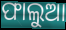
ଫାଲୁଆ